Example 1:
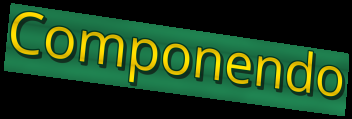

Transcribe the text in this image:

Componendo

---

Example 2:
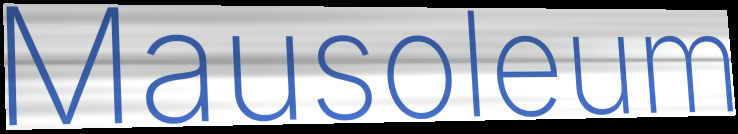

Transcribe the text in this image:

Mausoleum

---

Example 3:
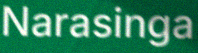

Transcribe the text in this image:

Narasinga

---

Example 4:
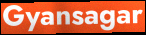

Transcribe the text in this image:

Gyansagar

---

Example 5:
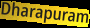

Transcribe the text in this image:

Dharapuram